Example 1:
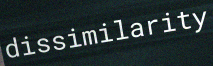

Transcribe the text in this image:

dissimilarity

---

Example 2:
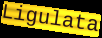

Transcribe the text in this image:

Ligulata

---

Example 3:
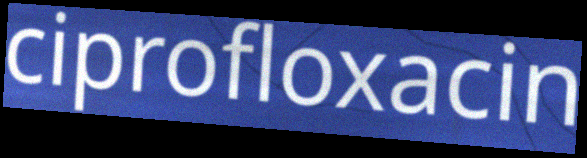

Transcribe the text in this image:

ciprofloxacin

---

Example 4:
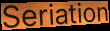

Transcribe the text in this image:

Seriation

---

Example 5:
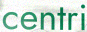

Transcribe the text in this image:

centri